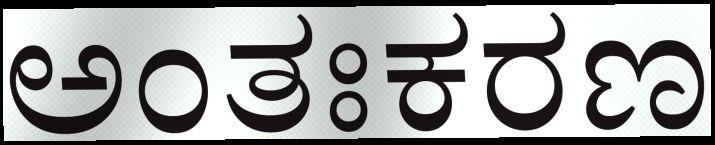
ಅಂತಃಕರಣ